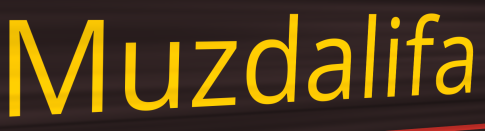
Muzdalifa